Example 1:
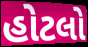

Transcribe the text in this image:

હોટલો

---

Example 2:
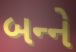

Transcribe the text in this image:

બન્‍ને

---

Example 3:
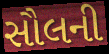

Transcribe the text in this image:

સૌલની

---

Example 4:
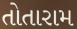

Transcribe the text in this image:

તોતારામ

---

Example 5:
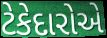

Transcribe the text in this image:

ટેકેદારોએ